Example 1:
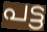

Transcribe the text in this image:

പട്ട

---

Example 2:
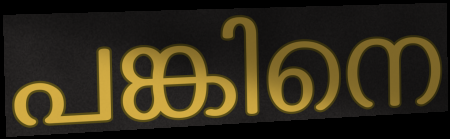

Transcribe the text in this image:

പങ്കിനെ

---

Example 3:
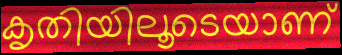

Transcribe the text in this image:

കൃതിയിലൂടെയാണ്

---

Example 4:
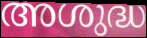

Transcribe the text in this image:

അശുദ്ധ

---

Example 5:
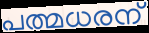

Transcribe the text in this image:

പത്മധരന്